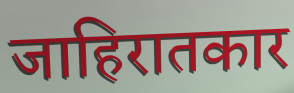
जाहिरातकार